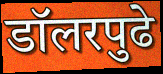
डॉलरपुढे